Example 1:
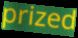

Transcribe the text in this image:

prized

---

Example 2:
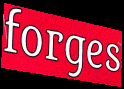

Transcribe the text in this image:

forges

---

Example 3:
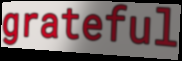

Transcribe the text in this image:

grateful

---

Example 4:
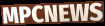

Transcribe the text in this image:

MPCNEWS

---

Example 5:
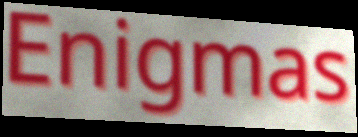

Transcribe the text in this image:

Enigmas